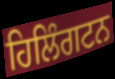
ਹਿਲਿੰਗਟਨ